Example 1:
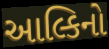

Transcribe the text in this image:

આલ્કિનો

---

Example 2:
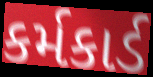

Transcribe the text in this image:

કર્મકાર્ડ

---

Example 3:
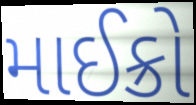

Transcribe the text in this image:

માઈક્રો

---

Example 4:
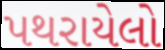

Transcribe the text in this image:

પથરાયેલો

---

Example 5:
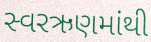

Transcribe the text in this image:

સ્વરઋણમાંથી